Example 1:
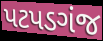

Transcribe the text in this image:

પટપડગંજ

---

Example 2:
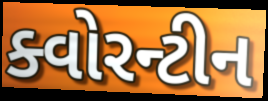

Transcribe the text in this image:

ક્વોરન્ટીન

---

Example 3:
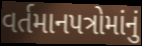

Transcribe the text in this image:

વર્તમાનપત્રોમાંનું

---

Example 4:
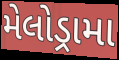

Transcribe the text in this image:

મેલોડ્રામા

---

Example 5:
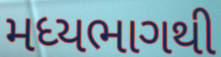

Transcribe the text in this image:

મધ્યભાગથી